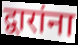
द्वारांना